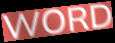
WORD